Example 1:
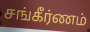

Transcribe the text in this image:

சங்கீர்ணம்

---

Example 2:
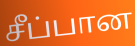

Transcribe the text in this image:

சீப்பான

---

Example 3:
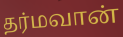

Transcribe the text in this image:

தர்மவான்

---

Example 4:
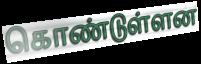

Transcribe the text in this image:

கொண்டுள்ளன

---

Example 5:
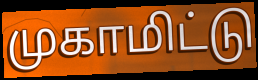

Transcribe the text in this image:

முகாமிட்டு